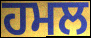
ਹਮਲ